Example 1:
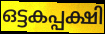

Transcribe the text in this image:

ഒട്ടകപ്പക്ഷി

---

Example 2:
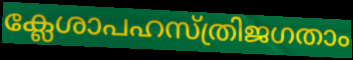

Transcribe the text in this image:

ക്ലേശാപഹസ്ത്രിജഗതാം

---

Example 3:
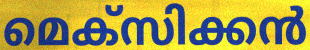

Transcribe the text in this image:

മെക്സിക്കൻ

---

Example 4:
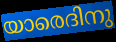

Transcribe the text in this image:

യാരെദിനു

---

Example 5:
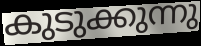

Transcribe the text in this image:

കുടുക്കുന്നു